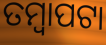
ତମ୍ବାପଟା